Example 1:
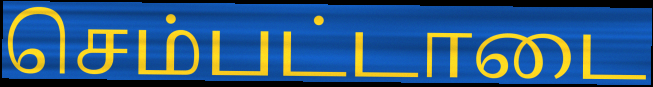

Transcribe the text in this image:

செம்பட்டாடை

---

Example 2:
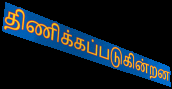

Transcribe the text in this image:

திணிக்கப்படுகின்றன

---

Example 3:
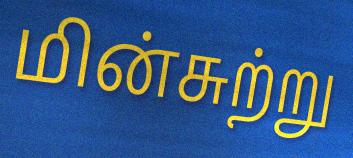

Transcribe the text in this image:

மின்சுற்று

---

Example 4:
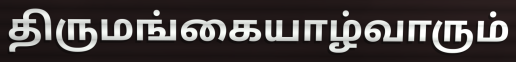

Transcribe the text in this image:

திருமங்கையாழ்வாரும்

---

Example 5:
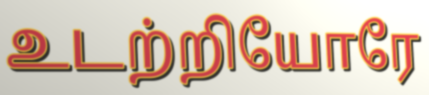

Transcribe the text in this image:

உடற்றியோரே